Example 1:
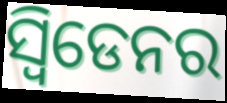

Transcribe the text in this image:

ସ୍ୱିଡେନର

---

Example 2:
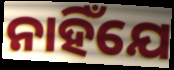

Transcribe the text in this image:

ନାହିଁଯେ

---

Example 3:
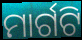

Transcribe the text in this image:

ମାର୍ଗଟି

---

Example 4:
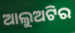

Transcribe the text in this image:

ଆଲୁଅଟିର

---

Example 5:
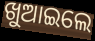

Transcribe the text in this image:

ଖୁଆଇଲେ